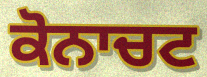
ਕੋਨਾਚਟ